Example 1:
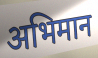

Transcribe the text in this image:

अभिमान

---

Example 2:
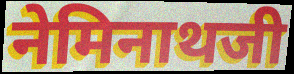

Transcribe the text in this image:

नेमिनाथजी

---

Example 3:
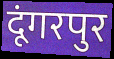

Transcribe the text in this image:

दूंगरपुर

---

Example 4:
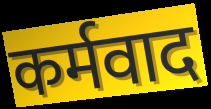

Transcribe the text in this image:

कर्मवाद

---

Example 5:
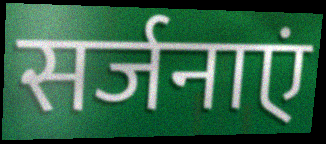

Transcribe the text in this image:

सर्जनाएं